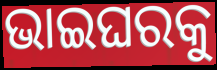
ଭାଇଘରକୁ